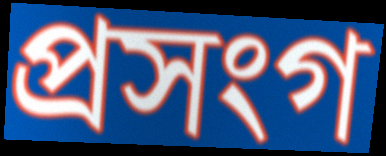
প্ৰসংগ